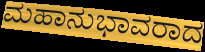
ಮಹಾನುಭಾವರಾದ